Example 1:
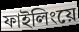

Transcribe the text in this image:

ফাইলিংয়ে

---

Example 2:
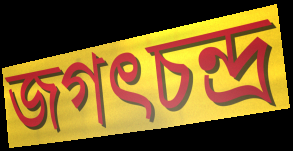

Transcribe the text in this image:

জগৎচন্দ্র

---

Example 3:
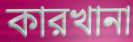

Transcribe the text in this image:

কারখানা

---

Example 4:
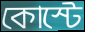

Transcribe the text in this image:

কোস্টে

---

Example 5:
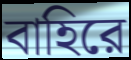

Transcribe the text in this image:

বাহিরে